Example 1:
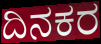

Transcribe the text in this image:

ದಿನಕರ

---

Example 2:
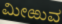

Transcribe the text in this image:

ಮೀಱುವ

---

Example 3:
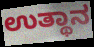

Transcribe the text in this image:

ಉತ್ಥಾನ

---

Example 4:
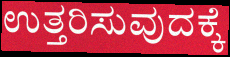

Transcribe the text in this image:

ಉತ್ತರಿಸುವುದಕ್ಕೆ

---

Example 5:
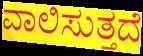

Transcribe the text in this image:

ವಾಲಿಸುತ್ತದೆ